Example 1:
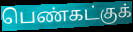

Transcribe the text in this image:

பெண்கட்குக்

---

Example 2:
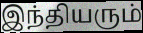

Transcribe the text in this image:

இந்தியரும்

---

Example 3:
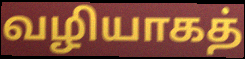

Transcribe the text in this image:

வழியாகத்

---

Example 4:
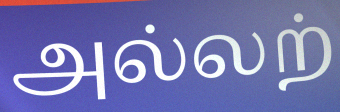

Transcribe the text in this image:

அல்லற்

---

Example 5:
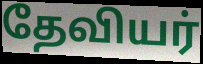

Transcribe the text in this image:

தேவியர்